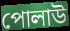
পোলাউ